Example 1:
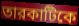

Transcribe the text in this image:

তারকাটিকে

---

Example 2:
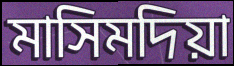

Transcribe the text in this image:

মাসিমদিয়া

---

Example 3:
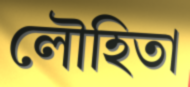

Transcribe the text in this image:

লৌহিতা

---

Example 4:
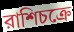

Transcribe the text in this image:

রাশিচক্রে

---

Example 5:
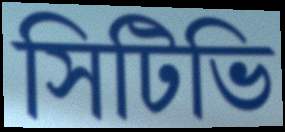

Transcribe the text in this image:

সিটিভি